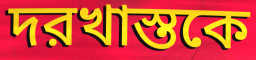
দরখাস্তকে